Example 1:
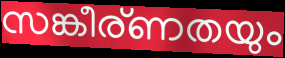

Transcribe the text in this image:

സങ്കീര്ണതയും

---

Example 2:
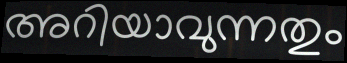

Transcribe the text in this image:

അറിയാവുന്നതും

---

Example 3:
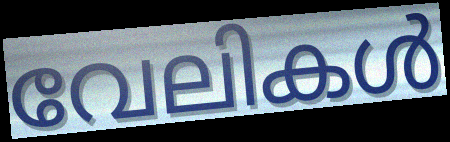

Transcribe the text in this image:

വേലികൾ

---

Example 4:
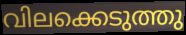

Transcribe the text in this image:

വിലക്കെടുത്തു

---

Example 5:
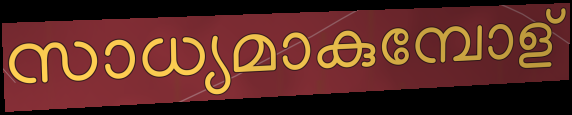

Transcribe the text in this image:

സാധ്യമാകുമ്പോള്